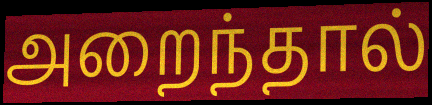
அறைந்தால்